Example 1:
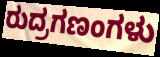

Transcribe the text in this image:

ರುದ್ರಗಣಂಗಳು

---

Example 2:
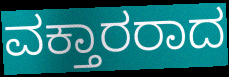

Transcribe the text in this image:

ವಕ್ತಾರರಾದ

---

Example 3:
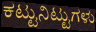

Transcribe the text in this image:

ಕಟ್ಟುನಿಟ್ಟುಗಳು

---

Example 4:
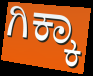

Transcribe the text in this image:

ಗಿಕ್ಕಾ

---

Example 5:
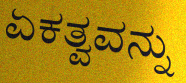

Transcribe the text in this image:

ಏಕತ್ವವನ್ನು